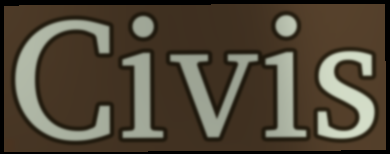
Civis